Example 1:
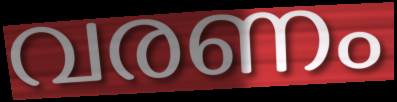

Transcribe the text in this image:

വരണം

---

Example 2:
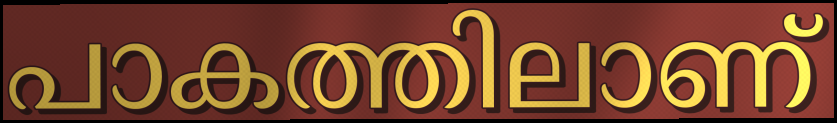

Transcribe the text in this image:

പാകത്തിലാണ്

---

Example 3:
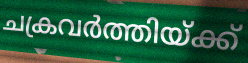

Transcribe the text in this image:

ചക്രവർത്തിയ്ക്ക്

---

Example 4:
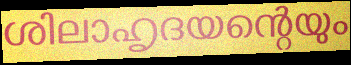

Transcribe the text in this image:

ശിലാഹൃദയന്റെയും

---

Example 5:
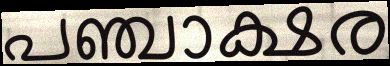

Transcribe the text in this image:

പഞ്ചാക്ഷര